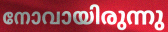
നോവായിരുന്നു